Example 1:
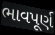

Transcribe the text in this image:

ભાવપૂર્ણ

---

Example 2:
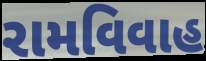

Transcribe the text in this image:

રામવિવાહ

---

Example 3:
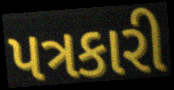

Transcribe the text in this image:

પત્રકારી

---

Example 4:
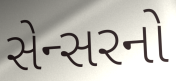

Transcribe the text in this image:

સેન્સરનો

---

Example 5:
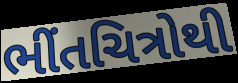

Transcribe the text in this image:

ભીંતચિત્રોથી